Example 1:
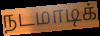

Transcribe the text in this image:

நடமாடிக்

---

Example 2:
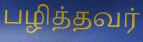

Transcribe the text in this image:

பழித்தவர்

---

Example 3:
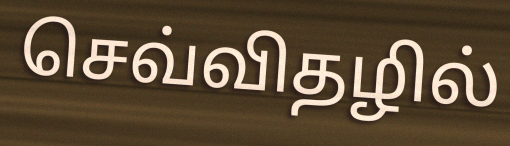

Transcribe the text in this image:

செவ்விதழில்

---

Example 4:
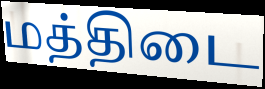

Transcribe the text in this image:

மத்திடை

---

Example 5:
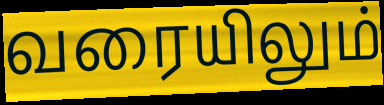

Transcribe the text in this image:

வரையிலும்